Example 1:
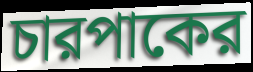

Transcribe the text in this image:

চারপাকের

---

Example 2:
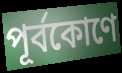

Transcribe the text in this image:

পূর্বকোণে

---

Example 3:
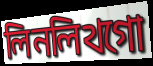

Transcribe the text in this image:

লিনলিথগো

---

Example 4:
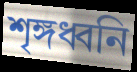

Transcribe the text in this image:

শৃঙ্গধ্বনি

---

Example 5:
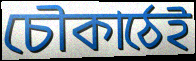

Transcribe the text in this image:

চৌকাঠেই